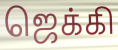
ஜெக்கி